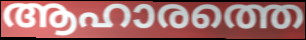
ആഹാരത്തെ